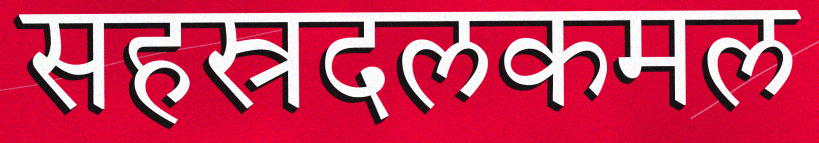
सहस्रदलकमल